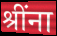
श्रींना